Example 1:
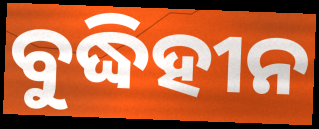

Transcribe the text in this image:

ବୁଦ୍ଧିହୀନ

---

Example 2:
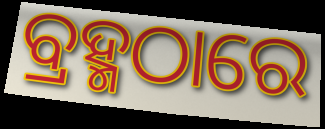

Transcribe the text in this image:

ବ୍ରହ୍ମଠାରେ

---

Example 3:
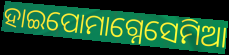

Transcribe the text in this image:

ହାଇପୋମାଗ୍ନେସେମିଆ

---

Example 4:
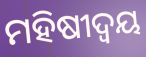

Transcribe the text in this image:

ମହିଷୀଦ୍ୱୟ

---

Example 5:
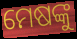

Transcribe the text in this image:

ମେଷଙ୍କୁ